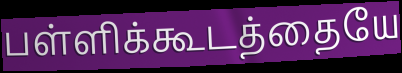
பள்ளிக்கூடத்தையே